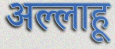
अल्लाहू